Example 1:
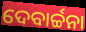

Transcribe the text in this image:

ଦେବାର୍ଚ୍ଚନା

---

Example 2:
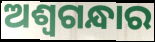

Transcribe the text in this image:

ଅଶ୍ୱଗନ୍ଧାର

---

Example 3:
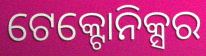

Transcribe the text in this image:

ଟେକ୍ଟୋନିକ୍ସର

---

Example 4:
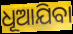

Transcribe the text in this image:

ଧୂଆଯିବା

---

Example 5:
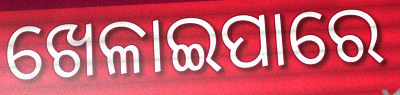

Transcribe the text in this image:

ଖେଳାଇପାରେ